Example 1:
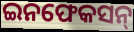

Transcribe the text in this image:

ଇନଫେକସନ୍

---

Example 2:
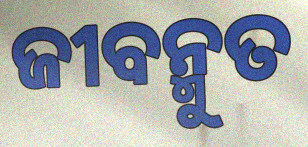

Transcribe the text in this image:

ଜୀବନ୍ମୁତ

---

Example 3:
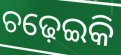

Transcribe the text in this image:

ଚଢ଼େଇକି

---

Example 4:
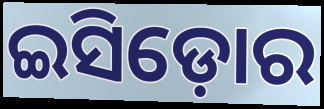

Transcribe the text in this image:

ଇସିଡ଼ୋର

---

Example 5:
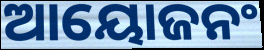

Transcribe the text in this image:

ଆୟୋଜନଂ